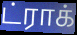
ட்ராக்